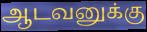
ஆடவனுக்கு